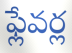
ఫ్లేవర్ల